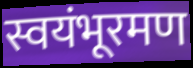
स्वयंभूरमण